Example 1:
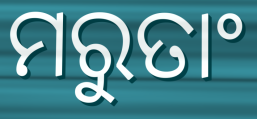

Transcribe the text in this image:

ମରୁତାଂ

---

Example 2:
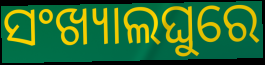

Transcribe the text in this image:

ସଂଖ୍ୟାଲଘୁରେ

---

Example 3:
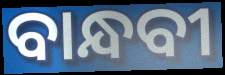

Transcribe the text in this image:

ବାନ୍ଧବୀ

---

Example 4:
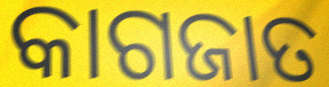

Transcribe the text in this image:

କାଗଜାତ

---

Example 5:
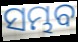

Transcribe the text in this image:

ସମ୍ଭବ